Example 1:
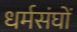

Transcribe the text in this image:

धर्मसंघों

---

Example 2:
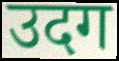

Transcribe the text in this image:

उदग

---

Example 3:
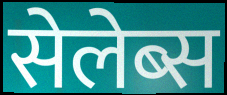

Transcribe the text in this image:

सेलेब्‍स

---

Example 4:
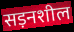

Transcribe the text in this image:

सड़नशील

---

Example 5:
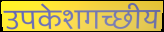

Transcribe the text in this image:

उपकेशगच्छीय